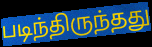
படிந்திருந்தது